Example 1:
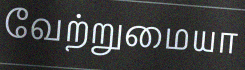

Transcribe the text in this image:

வேற்றுமையா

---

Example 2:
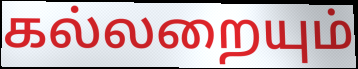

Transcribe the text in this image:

கல்லறையும்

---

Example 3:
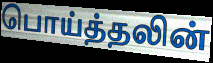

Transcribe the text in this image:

பொய்த்தலின்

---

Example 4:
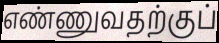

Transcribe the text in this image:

எண்ணுவதற்குப்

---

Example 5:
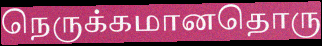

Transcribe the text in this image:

நெருக்கமானதொரு